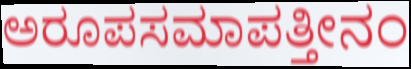
ಅರೂಪಸಮಾಪತ್ತೀನಂ